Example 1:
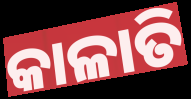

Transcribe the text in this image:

କାଳାତି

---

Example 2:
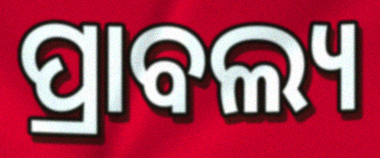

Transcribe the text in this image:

ପ୍ରାବଲ୍ୟ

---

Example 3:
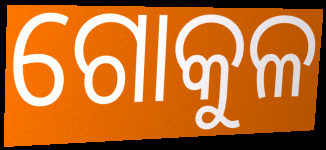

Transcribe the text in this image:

ଗୋକୁଳ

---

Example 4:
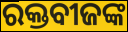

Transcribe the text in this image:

ରକ୍ତବୀଜଙ୍କ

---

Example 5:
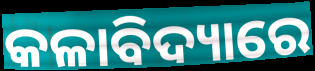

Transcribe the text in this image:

କଳାବିଦ୍ୟାରେ